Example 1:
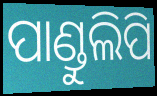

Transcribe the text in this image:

ପାଣ୍ଡୁଲିପି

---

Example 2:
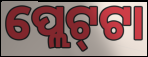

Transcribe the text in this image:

ପ୍ଲେଟ୍‍ଟା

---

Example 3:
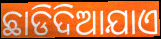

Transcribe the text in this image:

ଛାଡିଦିଆଯାଏ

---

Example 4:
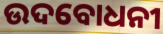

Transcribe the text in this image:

ଉଦବୋଧନୀ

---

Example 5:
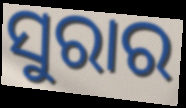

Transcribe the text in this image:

ସୁରାର